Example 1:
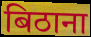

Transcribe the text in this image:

बिठाना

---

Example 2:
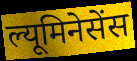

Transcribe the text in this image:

ल्यूमिनेसेंस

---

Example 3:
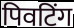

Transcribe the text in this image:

पिवटिंग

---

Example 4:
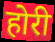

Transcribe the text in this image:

होरी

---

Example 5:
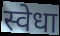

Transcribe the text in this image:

स्वेधा